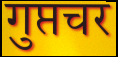
गुप्तचर